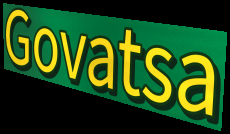
Govatsa